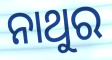
ନାଥୁର